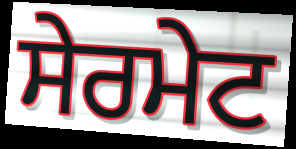
ਸੇਰਮੇਟ